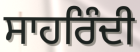
ਸਾਹਰਿੰਦੀ